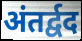
अंतर्द्वद